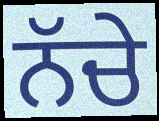
ਨੱਚੇ